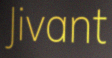
Jivant